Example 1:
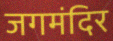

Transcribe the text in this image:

जगमंदिर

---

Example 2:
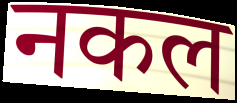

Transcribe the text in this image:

नकल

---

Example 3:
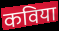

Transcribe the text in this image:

कविया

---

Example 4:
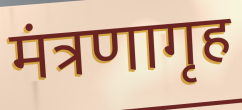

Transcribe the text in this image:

मंत्रणागृह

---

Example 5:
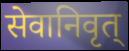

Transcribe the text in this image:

सेवानिवृत्